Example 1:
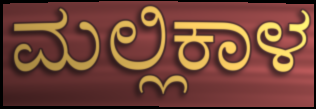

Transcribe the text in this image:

ಮಲ್ಲಿಕಾಳ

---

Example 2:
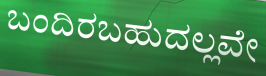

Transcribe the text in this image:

ಬಂದಿರಬಹುದಲ್ಲವೇ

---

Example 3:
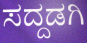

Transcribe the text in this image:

ಸದ್ದಡಗಿ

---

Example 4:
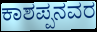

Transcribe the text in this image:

ಕಾಶಪ್ಪನವರ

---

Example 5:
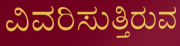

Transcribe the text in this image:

ವಿವರಿಸುತ್ತಿರುವ